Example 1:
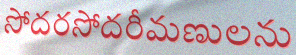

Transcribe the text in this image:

సోదరసోదరీమణులను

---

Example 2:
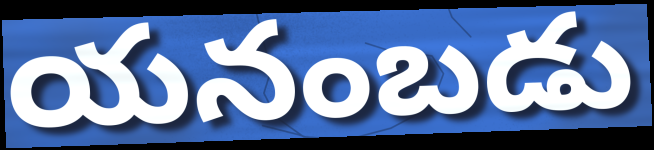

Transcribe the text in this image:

యనంబడు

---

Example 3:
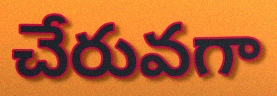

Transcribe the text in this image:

చేరువగా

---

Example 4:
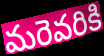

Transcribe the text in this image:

మరెవరికి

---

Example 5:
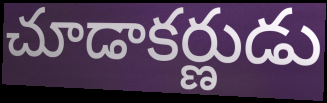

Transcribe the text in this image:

చూడాకర్ణుడు